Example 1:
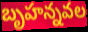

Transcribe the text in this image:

బృహన్నవల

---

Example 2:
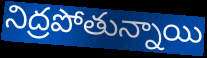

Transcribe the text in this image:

నిద్రపోతున్నాయి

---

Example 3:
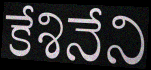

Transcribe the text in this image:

కేశినేని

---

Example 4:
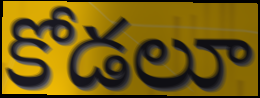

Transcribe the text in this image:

కోడలూ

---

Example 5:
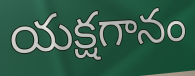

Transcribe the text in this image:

యక్షగానం